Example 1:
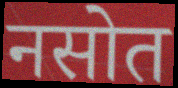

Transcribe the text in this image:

नसोत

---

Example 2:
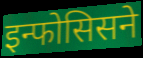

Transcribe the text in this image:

इन्फोसिसने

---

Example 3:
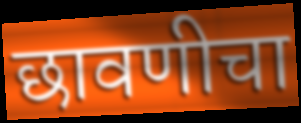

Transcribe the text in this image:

छावणीचा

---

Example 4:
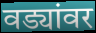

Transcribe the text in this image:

वड्यांवर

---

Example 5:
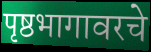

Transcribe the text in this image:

पृष्ठभागावरचे